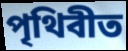
পৃথিবীত